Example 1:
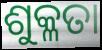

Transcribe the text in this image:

ଶୁକ୍ଳତା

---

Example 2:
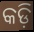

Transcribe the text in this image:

କଡ଼ି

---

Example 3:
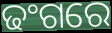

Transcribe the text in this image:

ଢଂଗରେ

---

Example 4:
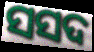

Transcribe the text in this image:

ସସଦ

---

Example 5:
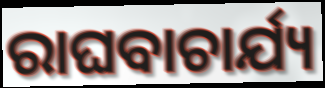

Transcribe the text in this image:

ରାଘବାଚାର୍ଯ୍ୟ